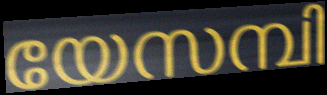
യേസമ്പി